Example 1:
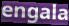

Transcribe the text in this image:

engala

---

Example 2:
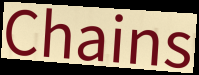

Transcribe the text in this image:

Chains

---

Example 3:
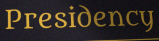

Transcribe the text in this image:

Presidency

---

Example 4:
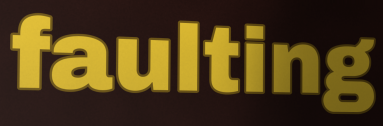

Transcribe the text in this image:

faulting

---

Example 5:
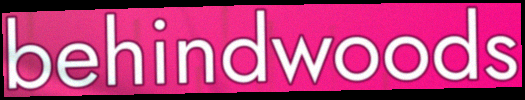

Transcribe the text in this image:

behindwoods